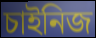
চাইনিজ